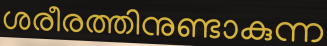
ശരീരത്തിനുണ്ടാകുന്ന